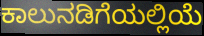
ಕಾಲುನಡಿಗೆಯಲ್ಲಿಯೆ